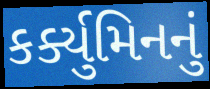
કર્ક્યુમિનનું